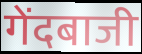
गेंदबाजी